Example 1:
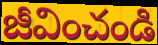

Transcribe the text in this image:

జీవించండి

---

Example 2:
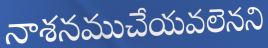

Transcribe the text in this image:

నాశనముచేయవలెనని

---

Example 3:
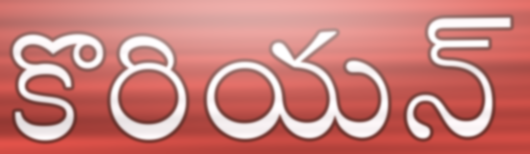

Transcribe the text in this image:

కొరియన్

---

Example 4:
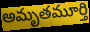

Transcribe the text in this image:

అమృతమూర్తి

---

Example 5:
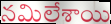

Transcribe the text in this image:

నమిలేశాయి